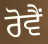
ਰੋਵੈਂ